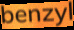
benzyl